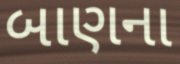
બાણના